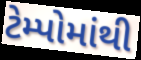
ટેમ્પોમાંથી